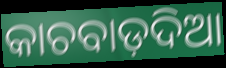
କାଚବାଡ଼ଦିଆ